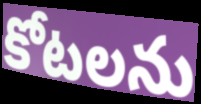
కోటలను